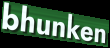
bhunken